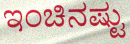
ಇಂಚಿನಷ್ಟು